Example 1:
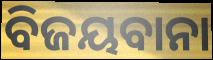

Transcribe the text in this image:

ବିଜୟବାନା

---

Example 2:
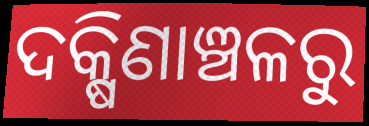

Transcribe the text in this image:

ଦକ୍ଷିଣାଞ୍ଚଳରୁ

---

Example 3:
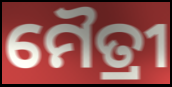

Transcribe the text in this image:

ମୈତ୍ରୀ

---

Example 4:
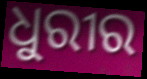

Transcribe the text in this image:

ଧୁରୀର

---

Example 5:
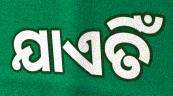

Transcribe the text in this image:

ଯାଏତିଁ